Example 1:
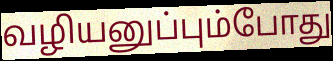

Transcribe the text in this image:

வழியனுப்பும்போது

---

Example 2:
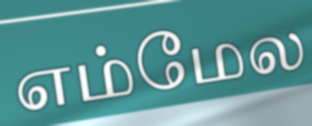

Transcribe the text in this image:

எம்மேல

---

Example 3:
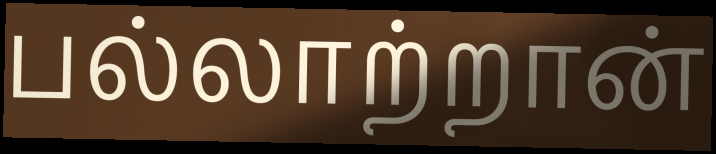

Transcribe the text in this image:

பல்லாற்றான்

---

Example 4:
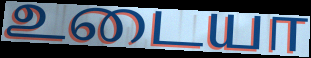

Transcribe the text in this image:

உடையா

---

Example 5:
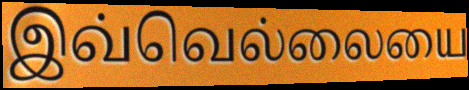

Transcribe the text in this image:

இவ்வெல்லையை